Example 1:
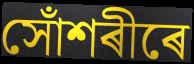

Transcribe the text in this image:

সোঁশৰীৰে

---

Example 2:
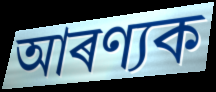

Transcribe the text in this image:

আৰণ্যক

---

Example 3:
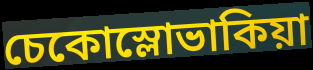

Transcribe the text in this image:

চেকোস্লোভাকিয়া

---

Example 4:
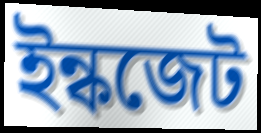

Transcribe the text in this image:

ইন্কজেট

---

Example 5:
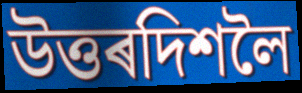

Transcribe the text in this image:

উত্তৰদিশলৈ